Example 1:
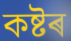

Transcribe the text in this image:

কষ্টৰ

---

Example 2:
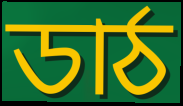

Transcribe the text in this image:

ডাঠ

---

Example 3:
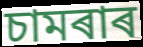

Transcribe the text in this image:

চামৰাৰ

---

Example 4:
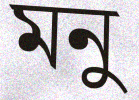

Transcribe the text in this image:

মনু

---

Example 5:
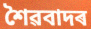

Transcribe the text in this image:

শৈৱবাদৰ